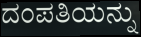
ದಂಪತಿಯನ್ನು